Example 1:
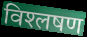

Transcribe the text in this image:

विश्लषण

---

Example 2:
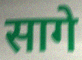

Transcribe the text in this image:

सागे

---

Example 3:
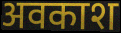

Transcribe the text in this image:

अवकाश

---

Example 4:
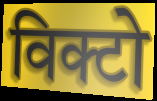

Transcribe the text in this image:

विक्टो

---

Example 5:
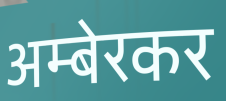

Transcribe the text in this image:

अम्बेरकर